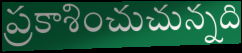
ప్రకాశించుచున్నది